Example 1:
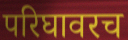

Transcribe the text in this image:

परिघावरच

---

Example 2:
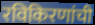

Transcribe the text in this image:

रविकिरणांची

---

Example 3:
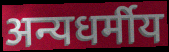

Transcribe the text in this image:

अन्यधर्मीय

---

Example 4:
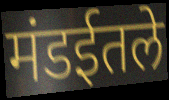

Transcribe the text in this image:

मंडईतले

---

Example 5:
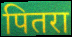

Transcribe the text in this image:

पितरा